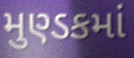
મુણ્ડકમાં